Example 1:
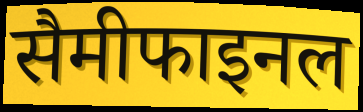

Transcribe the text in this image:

सैमीफाइनल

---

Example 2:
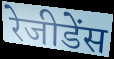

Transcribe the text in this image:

रेजीडेंस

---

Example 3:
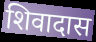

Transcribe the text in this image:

शिवादास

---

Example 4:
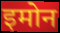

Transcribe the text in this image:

इमोन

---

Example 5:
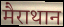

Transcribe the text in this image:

मैराथान